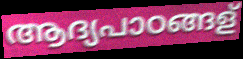
ആദ്യപാഠങ്ങള്